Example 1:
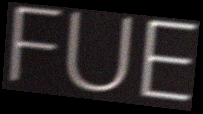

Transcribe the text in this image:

FUE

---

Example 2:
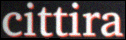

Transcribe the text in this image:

cittira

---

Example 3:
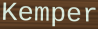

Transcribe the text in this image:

Kemper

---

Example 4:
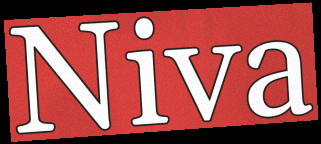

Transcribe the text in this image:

Niva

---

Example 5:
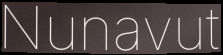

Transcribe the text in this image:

Nunavut